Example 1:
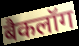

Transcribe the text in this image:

बैकलॉग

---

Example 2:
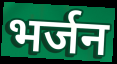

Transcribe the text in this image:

भर्जन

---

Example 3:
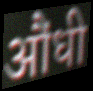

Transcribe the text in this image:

औंधी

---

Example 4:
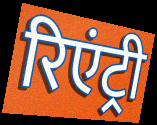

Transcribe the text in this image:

रिएंट्री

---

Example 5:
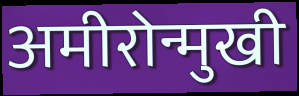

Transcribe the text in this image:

अमीरोन्मुखी